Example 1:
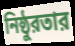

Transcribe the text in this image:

নিষ্ঠুরতার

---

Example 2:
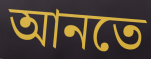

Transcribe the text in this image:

আনতে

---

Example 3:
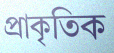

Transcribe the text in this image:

প্রাকৃতিক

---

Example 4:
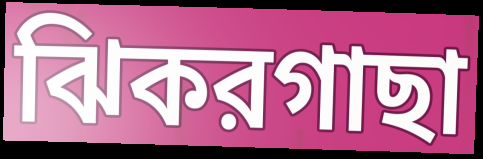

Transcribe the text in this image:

ঝিকরগাছা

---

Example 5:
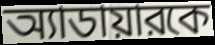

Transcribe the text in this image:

অ্যাডায়ারকে